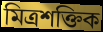
মিত্ৰশক্তিক